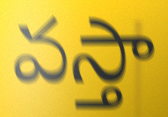
వస్తా